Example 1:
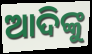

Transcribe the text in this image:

ଆଦିଙ୍କୁ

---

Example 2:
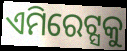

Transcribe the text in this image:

ଏମିରେଟ୍ସକୁ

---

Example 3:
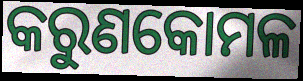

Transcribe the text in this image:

କରୁଣକୋମଳ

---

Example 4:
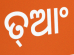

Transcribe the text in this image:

ତ୍ଆଂ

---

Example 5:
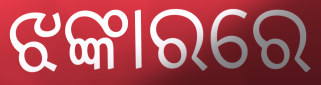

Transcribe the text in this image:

ଝଙ୍କାରରେ